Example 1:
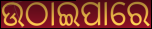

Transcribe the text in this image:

ଉଠାଇପାରେ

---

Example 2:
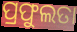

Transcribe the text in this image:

ପ୍ରଫୁଲତା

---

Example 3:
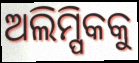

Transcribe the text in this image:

ଅଲିମ୍ପିକକୁ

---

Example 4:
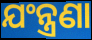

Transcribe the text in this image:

ଯଂନ୍ତ୍ରଣା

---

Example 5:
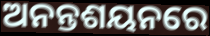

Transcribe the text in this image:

ଅନନ୍ତଶୟନରେ